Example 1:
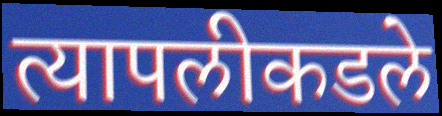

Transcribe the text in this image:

त्यापलीकडले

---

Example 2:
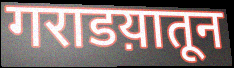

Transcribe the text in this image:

गराडय़ातून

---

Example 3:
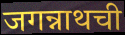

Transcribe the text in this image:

जगन्नाथची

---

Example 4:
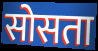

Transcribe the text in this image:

सोसता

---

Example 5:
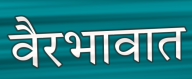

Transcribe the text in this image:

वैरभावात